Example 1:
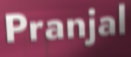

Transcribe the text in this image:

Pranjal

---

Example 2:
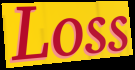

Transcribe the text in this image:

Loss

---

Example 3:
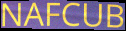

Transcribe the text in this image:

NAFCUB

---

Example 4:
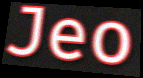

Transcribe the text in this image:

Jeo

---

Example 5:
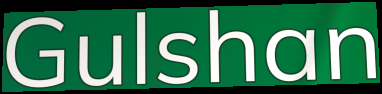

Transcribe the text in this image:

Gulshan